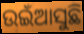
ଉଇଁଆସୁଛି